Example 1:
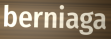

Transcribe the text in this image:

berniaga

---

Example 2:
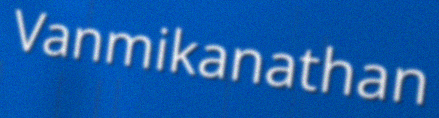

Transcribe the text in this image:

Vanmikanathan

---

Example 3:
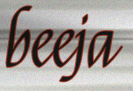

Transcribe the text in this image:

beeja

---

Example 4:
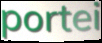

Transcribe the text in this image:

portei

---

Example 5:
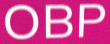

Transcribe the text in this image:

OBP